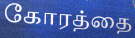
கோரத்தை